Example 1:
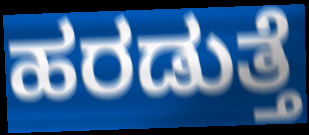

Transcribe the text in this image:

ಹರಡುತ್ತೆ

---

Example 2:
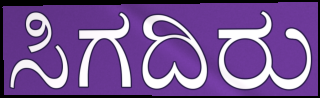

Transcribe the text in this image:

ಸಿಗದಿರು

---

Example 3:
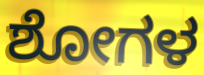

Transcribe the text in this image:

ಶೋಗಳ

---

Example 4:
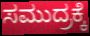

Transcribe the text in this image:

ಸಮುದ್ರಕ್ಕೆ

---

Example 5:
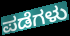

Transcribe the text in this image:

ಪಡೆಗಳು